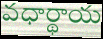
వధార్థాయ